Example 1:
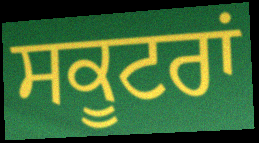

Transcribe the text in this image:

ਸਕੂਟਰਾਂ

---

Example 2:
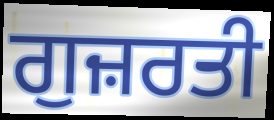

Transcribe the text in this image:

ਗੁਜ਼ਰਤੀ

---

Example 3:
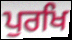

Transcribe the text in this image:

ਪੁਰਖਿ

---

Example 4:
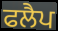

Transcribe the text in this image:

ਫਲੈਪ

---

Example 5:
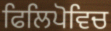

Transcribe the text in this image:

ਫਿਲਿਪੋਵਿਚ